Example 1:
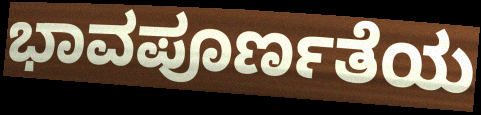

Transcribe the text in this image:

ಭಾವಪೂರ್ಣತೆಯ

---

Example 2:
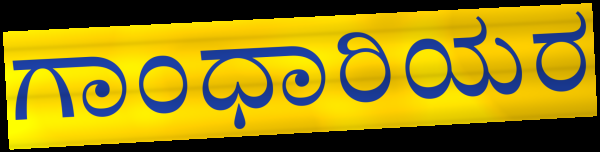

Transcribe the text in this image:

ಗಾಂಧಾರಿಯರ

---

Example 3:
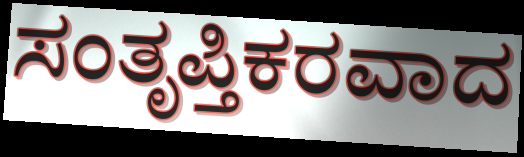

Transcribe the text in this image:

ಸಂತೃಪ್ತಿಕರವಾದ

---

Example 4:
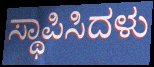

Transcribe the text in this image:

ಸ್ಥಾಪಿಸಿದಳು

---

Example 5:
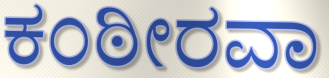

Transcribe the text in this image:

ಕಂಠೀರವಾ